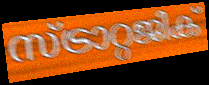
സ്ട്രാറ്റജിക്